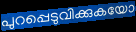
പുറപ്പെടുവിക്കുകയോ